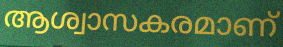
ആശ്വാസകരമാണ്